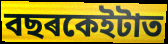
বছৰকেইটাত